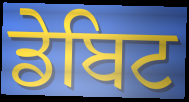
ਡੇਬਿਟ